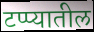
टप्प्यातील